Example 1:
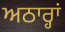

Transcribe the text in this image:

ਅਠਾਰ੍ਹਾਂ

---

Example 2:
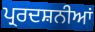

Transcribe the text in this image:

ਪ੍ਰਰਦਸ਼ਨੀਆਂ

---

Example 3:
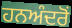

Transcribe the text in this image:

ਹਨਅੰਦਰੋਂ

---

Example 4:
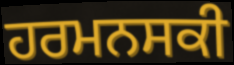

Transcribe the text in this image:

ਹਰਮਨਸਕੀ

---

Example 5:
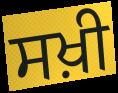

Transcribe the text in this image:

ਸਖ਼ੀ